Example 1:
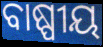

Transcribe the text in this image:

ବାଷ୍ପୀୟ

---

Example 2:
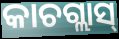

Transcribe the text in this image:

କାଚଗ୍ଲାସ୍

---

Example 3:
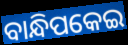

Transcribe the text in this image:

ବାନ୍ଧିପକେଇ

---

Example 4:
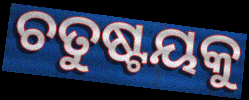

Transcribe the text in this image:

ଚତୁଷ୍ଟୟକୁ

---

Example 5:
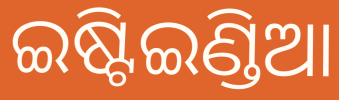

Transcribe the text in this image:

ଇଷ୍ଟିଇଣ୍ଡିଆ